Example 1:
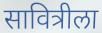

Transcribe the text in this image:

सावित्रीला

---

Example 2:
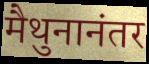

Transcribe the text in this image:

मैथुनानंतर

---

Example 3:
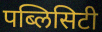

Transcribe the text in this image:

पब्लिसिटी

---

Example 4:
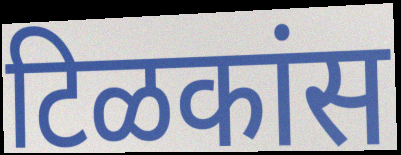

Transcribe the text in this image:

टिळकांस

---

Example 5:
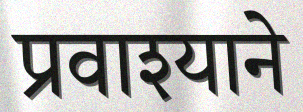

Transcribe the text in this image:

प्रवाश्याने